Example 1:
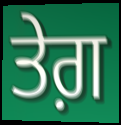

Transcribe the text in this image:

ਤੇਗ਼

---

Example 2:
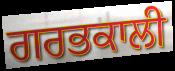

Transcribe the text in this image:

ਗਰਭਕਾਲੀ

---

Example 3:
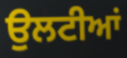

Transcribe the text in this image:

ਉਲਟੀਆਂ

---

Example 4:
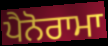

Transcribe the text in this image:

ਪੈਨੋਰਾਮਾ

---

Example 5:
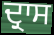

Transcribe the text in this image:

ਦ੍ਰਾਸ